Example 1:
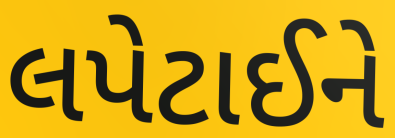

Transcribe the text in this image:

લપેટાઈને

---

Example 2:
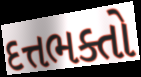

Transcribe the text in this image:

દત્તભક્તો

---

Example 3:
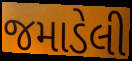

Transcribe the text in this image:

જમાડેલી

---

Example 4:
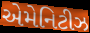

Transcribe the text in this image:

એમેનિટીઝ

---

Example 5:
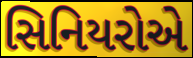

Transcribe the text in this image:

સિનિયરોએ